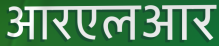
आरएलआर